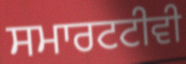
ਸਮਾਰਟਟੀਵੀ